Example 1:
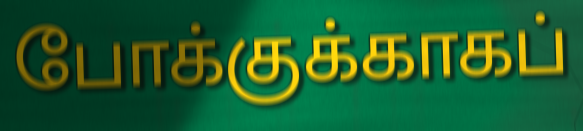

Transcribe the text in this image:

போக்குக்காகப்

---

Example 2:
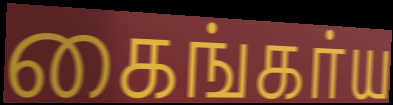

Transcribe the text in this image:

கைங்கர்ய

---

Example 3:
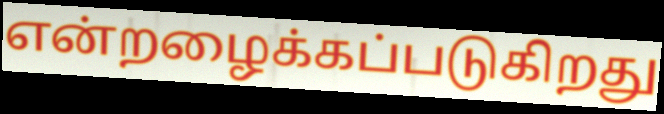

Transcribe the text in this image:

என்றழைக்கப்படுகிறது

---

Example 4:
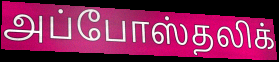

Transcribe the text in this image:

அப்போஸ்தலிக்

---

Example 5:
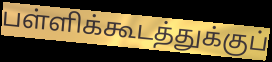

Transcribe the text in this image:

பள்ளிக்கூடத்துக்குப்